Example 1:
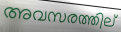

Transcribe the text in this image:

അവസരത്തില്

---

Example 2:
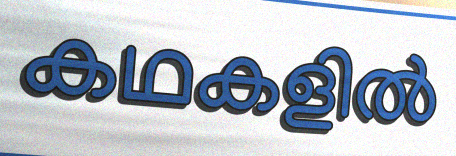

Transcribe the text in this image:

കഥകളിൽ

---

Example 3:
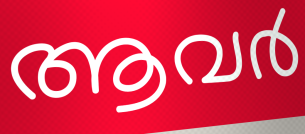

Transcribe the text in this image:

ആവർ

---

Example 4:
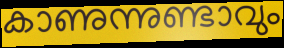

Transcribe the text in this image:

കാണുന്നുണ്ടാവും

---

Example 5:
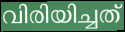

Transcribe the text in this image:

വിരിയിച്ചത്